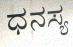
ಧನಸ್ಯ